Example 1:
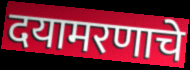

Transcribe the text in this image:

दयामरणाचे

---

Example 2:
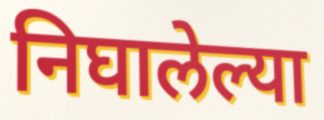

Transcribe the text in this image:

निघालेल्या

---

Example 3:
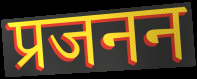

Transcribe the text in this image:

प्रजनन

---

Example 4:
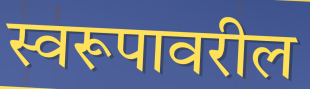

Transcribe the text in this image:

स्वरूपावरील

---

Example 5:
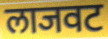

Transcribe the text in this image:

लाजवट